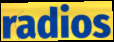
radios